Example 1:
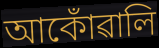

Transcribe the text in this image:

আকোঁৱালি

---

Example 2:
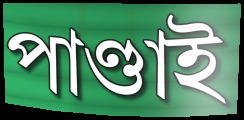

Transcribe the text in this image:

পাণ্ডাই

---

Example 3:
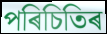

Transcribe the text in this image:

পৰিচিতিৰ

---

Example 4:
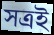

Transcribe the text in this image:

সত্ৰই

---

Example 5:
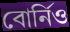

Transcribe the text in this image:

বোৰ্নিও